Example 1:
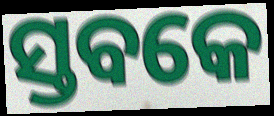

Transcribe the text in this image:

ସ୍ତବକେ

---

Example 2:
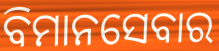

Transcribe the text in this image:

ବିମାନସେବାର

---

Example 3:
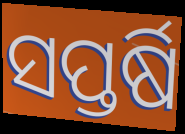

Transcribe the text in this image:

ସପ୍ତର୍ଷି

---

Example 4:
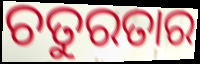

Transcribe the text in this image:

ଚତୁରତାର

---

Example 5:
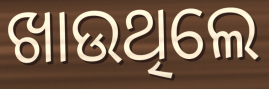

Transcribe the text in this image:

ଖାଉଥିଲେ